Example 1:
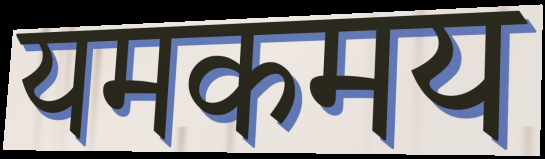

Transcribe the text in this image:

यमकमय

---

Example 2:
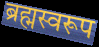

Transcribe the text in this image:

ब्रह्मस्वरूप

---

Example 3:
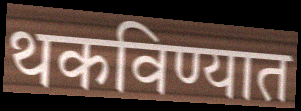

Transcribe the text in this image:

थकविण्यात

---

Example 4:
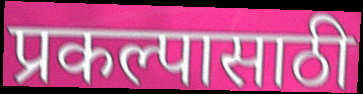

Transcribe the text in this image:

प्रकल्पासाठी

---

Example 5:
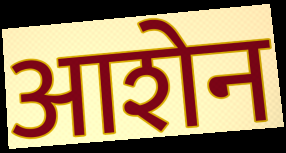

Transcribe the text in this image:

आशेन